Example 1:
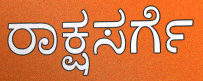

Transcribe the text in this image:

ರಾಕ್ಷಸರ್ಗೆ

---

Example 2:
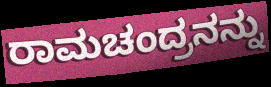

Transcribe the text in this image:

ರಾಮಚಂದ್ರನನ್ನು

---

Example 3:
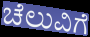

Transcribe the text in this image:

ಚೆಲುವಿಗೆ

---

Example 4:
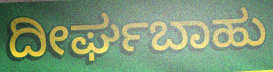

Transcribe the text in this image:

ದೀರ್ಘಬಾಹು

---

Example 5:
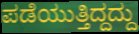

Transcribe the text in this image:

ಪಡೆಯುತ್ತಿದ್ದದ್ದು